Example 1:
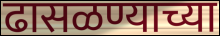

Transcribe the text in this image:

ढासळण्याच्या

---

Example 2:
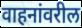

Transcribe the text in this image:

वाहनांवरील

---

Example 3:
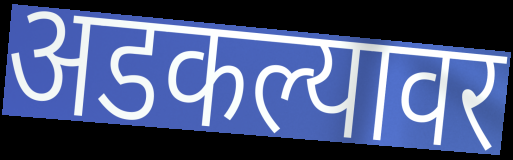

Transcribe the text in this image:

अडकल्यावर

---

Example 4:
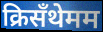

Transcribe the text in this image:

क्रिसँथेमम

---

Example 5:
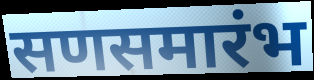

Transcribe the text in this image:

सणसमारंभ